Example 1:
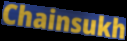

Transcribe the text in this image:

Chainsukh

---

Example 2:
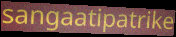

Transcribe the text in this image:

sangaatipatrike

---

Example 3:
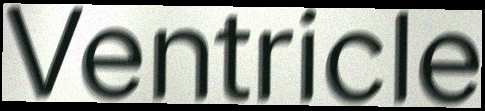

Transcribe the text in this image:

Ventricle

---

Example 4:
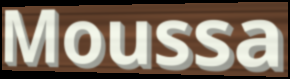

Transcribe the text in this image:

Moussa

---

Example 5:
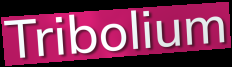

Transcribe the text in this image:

Tribolium